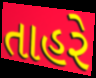
તાહરે